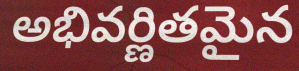
అభివర్ణితమైన